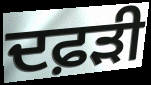
ਦਫ਼ੜੀ